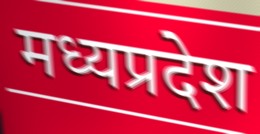
मध्यप्रदेश